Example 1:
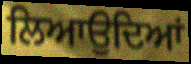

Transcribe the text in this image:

ਲਿਆਉਦਿਆਂ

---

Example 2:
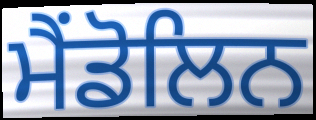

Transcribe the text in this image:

ਮੈਂਡੋਲਿਨ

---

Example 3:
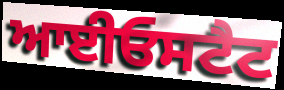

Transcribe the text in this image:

ਆਈਓਸਟੈਟ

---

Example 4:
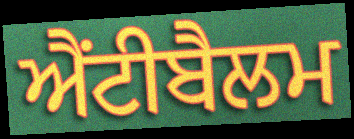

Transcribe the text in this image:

ਐਂਟੀਬੈਲਮ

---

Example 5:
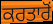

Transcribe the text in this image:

ਕਰਤਾਰੋਂ